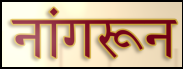
नांगरून